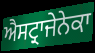
ਐਸਟ੍ਰਾਜੇਨੇਕਾ